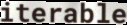
iterable